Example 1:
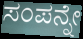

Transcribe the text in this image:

ಸಂಪನ್ನೇ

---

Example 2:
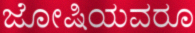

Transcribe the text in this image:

ಜೋಷಿಯವರೂ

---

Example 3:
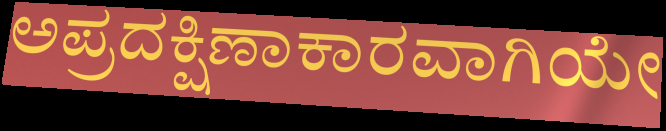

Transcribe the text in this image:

ಅಪ್ರದಕ್ಷಿಣಾಕಾರವಾಗಿಯೇ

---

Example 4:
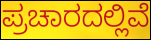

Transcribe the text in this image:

ಪ್ರಚಾರದಲ್ಲಿವೆ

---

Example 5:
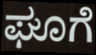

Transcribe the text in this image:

ಘೂಗೆ